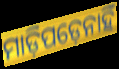
ମାଡ଼ିପଡ଼େନାହିଁ